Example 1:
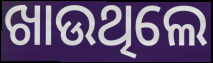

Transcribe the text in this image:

ଖାଉଥିଲେ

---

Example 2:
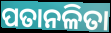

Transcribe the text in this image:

ପତାନଳିତା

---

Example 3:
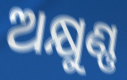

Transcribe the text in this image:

ଅକ୍ଷୁଣ୍ଣ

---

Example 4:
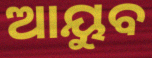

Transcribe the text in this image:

ଆୟୁବ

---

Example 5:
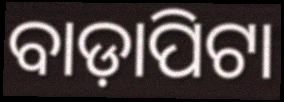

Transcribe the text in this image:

ବାଡ଼ାପିଟା